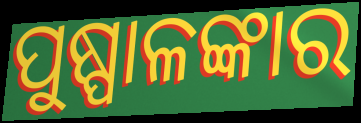
ପୁଷ୍ପାଳଙ୍କାର